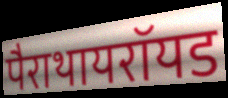
पैराथायरॉयड